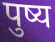
पुष्य